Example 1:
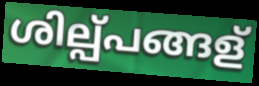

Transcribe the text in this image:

ശില്പ്പങ്ങള്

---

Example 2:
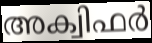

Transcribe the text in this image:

അക്വിഫർ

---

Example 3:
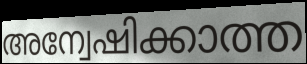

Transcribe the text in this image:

അന്വേഷിക്കാത്ത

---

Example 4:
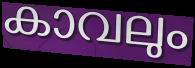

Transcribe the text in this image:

കാവലും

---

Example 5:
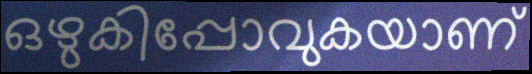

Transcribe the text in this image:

ഒഴുകിപ്പോവുകയാണ്